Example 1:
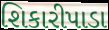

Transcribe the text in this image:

શિકારીપાડા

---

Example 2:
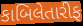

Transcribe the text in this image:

કાબિલેતારીફ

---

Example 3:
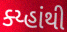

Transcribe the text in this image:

ક્ય્હાંથી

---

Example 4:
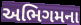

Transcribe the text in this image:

અભિગમના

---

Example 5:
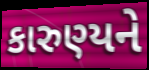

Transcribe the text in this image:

કારુણ્યને